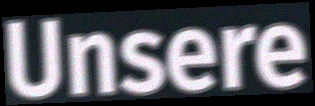
Unsere